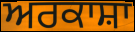
ਅਰਕਾਸ਼ਾ